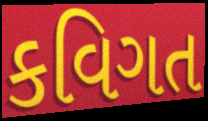
કવિગત